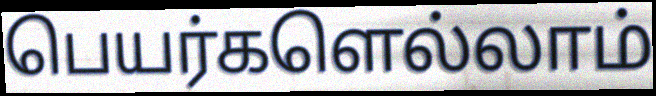
பெயர்களெல்லாம்